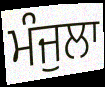
ਮੰਜੁਲਾ